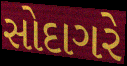
સોદાગરે